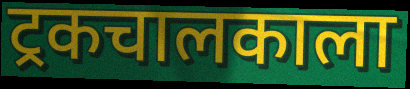
ट्रकचालकाला